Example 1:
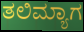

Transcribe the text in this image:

ತಲಿಮ್ಯಾಗ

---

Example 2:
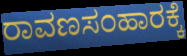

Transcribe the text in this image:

ರಾವಣಸಂಹಾರಕ್ಕೆ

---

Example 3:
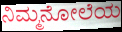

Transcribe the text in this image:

ನಿಮ್ಮನೋಲೆಯ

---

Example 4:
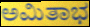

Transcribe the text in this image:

ಅಮಿತಾಭ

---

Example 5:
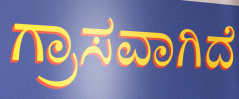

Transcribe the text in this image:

ಗ್ರಾಸವಾಗಿದೆ